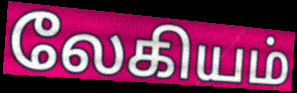
லேகியம்